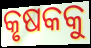
କୃଷକକୁ